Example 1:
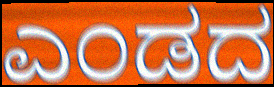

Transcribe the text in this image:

ಎಂಡದ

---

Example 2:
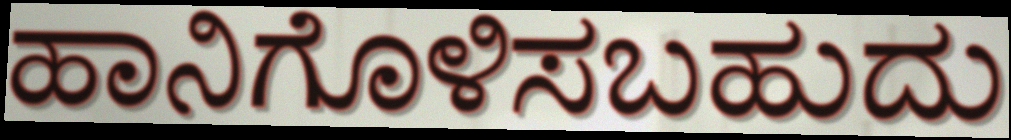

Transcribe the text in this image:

ಹಾನಿಗೊಳಿಸಬಹುದು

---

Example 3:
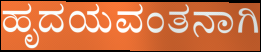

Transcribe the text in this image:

ಹೃದಯವಂತನಾಗಿ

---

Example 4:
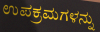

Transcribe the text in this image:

ಉಪಕ್ರಮಗಳನ್ನು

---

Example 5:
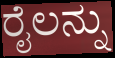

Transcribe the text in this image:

ರೈಲನ್ನು